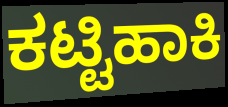
ಕಟ್ಟಿಹಾಕಿ